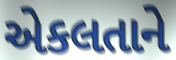
એકલતાને